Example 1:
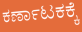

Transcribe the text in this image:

ಕರ್ಣಾಟಕಕ್ಕೆ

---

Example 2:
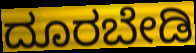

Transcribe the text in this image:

ದೂರಬೇಡಿ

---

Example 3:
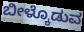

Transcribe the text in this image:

ಬೀಳ್ಕೊಡುವ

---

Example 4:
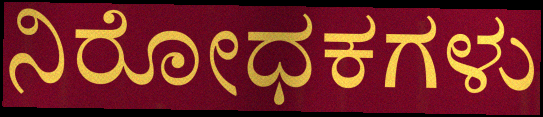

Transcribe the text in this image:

ನಿರೋಧಕಗಳು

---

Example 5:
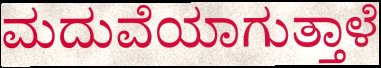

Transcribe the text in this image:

ಮದುವೆಯಾಗುತ್ತಾಳೆ